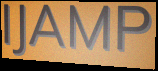
IJAMP